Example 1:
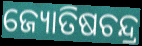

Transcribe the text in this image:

ଜ୍ୟୋତିଷଚନ୍ଦ୍ର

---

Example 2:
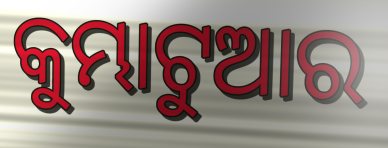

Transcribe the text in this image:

କୁମ୍ଭାଟୁଆର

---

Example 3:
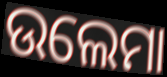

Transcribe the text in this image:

ଉଲେମା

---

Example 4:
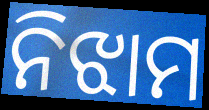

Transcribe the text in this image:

ନିଝାମ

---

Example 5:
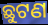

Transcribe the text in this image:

ଛୁଟଣ